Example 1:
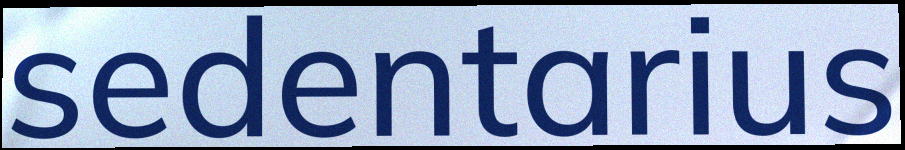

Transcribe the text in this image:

sedentarius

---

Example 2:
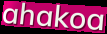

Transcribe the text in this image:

ahakoa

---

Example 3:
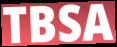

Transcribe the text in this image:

TBSA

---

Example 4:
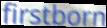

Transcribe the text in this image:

firstborn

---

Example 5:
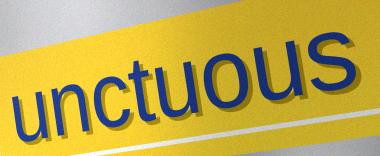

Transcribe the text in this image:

unctuous